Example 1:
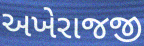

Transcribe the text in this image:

અખેરાજજી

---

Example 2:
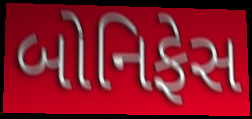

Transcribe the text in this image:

બોનિફેસ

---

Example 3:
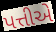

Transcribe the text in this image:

પત્તીએ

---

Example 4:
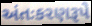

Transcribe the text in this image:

અંતઃકરણરૂપે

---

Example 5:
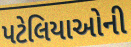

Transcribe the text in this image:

પટેલિયાઓની